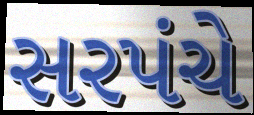
સરપંચે